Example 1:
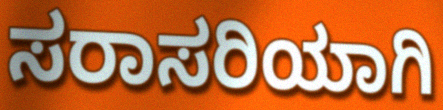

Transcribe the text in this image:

ಸರಾಸರಿಯಾಗಿ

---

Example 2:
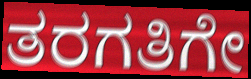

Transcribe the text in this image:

ತರಗತಿಗೇ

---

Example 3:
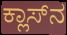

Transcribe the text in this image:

ಕ್ಲಾಸ್‌ನ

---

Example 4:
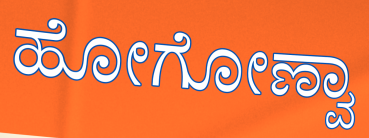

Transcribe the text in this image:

ಹೋಗೋಣ್ವಾ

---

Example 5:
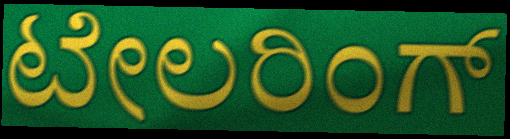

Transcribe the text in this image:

ಟೇಲರಿಂಗ್